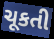
ચૂકતી